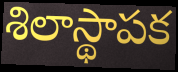
శిలాస్థాపక